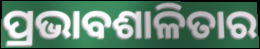
ପ୍ରଭାବଶାଳିତାର